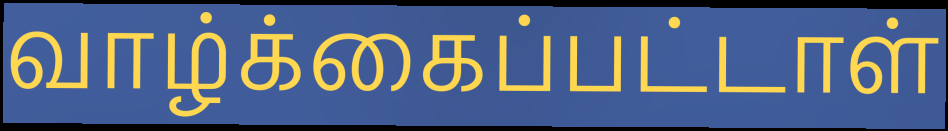
வாழ்க்கைப்பட்டாள்